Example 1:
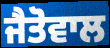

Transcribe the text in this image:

ਜੈਤੋਵਾਲ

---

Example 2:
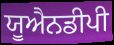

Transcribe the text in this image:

ਯੂਐਨਡੀਪੀ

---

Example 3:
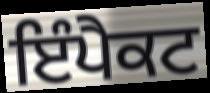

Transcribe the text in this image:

ਇੰਪੈਕਟ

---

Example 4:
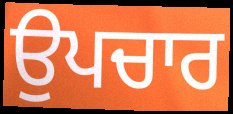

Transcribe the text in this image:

ਉਪਚਾਰ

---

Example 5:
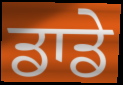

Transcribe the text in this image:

ਡਾਡੇ